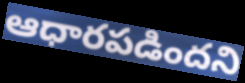
ఆధారపడిందని